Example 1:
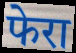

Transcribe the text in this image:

फेरा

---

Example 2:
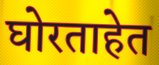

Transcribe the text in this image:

घोरताहेत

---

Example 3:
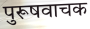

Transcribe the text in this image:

पुरूषवाचक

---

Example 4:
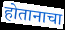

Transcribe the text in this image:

होतानाचा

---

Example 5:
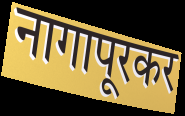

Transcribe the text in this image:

नागापूरकर